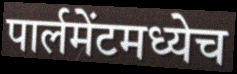
पार्लमेंटमध्येच